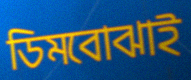
ডিমবোঝাই